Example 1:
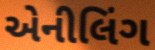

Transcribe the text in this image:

એનીલિંગ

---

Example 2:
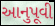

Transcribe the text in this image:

આનુપૂવી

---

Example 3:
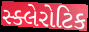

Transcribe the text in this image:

સ્ક્લેરોટિક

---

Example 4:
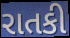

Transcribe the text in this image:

રાતકી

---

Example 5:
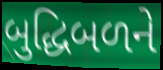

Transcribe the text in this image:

બુદ્ધિબળને